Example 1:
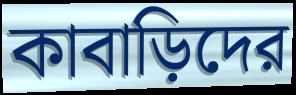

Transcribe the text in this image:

কাবাড়িদের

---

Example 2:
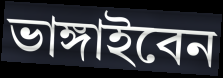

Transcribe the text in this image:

ভাঙ্গাইবেন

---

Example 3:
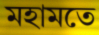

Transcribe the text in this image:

মহামতে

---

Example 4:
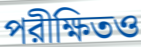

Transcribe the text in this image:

পরীক্ষিতও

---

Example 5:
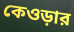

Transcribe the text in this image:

কেওড়ার